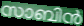
സാബിൻ